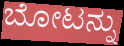
ಬೋಟನ್ನು